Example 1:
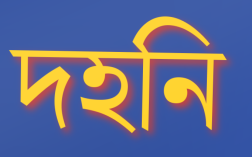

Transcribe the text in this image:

দহনি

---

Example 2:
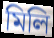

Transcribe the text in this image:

মিলি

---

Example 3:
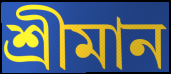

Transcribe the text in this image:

শ্ৰীমান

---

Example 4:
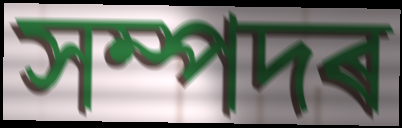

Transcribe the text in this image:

সম্পদৰ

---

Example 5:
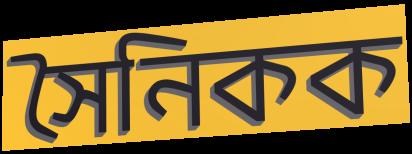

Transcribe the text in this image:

সৈনিকক